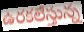
ఉరకలేస్తున్న